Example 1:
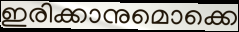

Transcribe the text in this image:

ഇരിക്കാനുമൊക്കെ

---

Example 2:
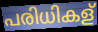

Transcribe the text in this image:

പരിധികള്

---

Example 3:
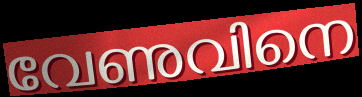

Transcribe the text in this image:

വേണുവിനെ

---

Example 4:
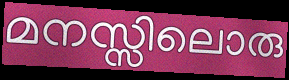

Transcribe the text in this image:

മനസ്സിലൊരു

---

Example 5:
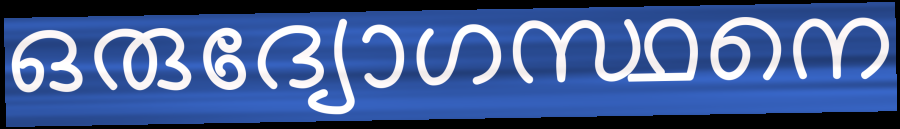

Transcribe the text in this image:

ഒരുദ്യോഗസ്ഥനെ